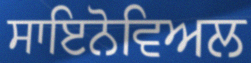
ਸਾਇਨੋਵਿਅਲ